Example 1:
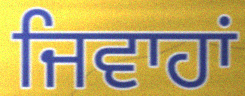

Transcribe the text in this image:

ਜਿਵਾਹਾਂ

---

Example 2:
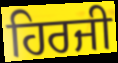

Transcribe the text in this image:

ਹਿਰਜੀ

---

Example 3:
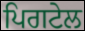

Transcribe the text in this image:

ਪਿਗਟੇਲ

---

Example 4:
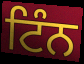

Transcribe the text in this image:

ਟਿੰਨ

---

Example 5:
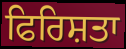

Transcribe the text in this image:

ਫਿਰਿਸ਼ਤਾ